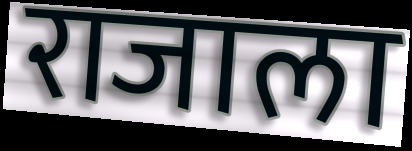
राजाला